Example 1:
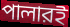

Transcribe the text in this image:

পালারই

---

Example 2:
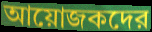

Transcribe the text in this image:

আয়োজকদের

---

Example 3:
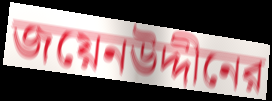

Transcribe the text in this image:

জয়েনউদ্দীনের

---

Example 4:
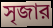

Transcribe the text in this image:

সৃজার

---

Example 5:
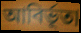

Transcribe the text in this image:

আবির্ভূতা